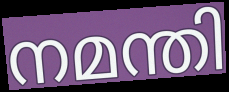
നമന്തി